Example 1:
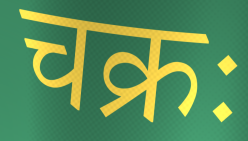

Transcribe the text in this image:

चक्रः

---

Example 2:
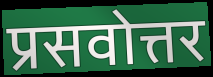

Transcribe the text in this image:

प्रसवोत्तर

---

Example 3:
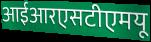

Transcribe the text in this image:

आईआरएसटीएमयू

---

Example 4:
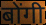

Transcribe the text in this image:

बोंगी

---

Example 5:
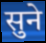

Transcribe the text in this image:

सुने